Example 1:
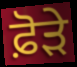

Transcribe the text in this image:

ਫ਼ੋੜੇ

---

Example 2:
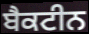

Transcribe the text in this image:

ਬੈਕਟੀਨ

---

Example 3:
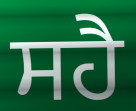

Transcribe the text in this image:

ਸਹੈ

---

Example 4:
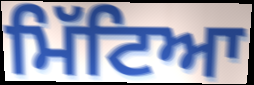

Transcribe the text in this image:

ਮਿੱਟਿਆ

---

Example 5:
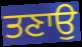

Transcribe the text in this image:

ਤਣਾਉ